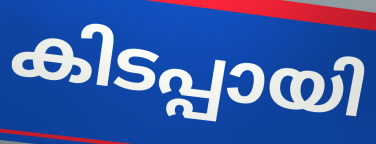
കിടപ്പായി